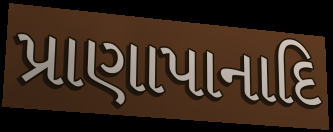
પ્રાણાપાનાદિ